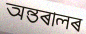
অন্তৰালৰ